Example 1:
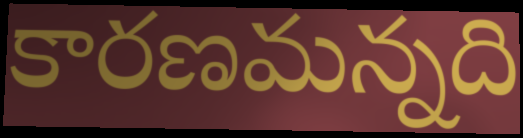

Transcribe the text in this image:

కారణమన్నది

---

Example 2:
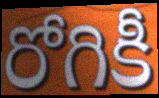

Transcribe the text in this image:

రోగికీ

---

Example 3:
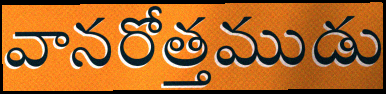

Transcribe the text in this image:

వానరోత్తముడు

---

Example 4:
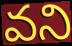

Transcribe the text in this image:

వని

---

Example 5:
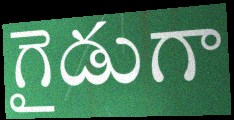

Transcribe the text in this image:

గైడుగా